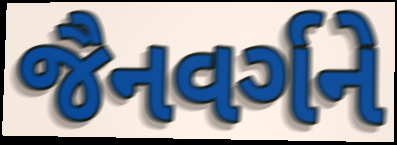
જૈનવર્ગને